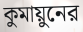
কুমায়ুনের